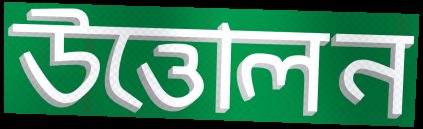
উত্তোলন